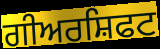
ਗੀਅਰਸ਼ਿਫਟ